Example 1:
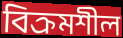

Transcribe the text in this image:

বিক্রমশীল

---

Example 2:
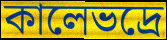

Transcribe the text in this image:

কালেভদ্রে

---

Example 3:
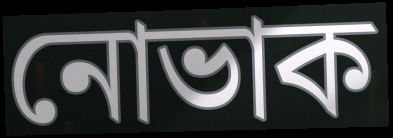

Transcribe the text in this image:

নোভাক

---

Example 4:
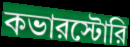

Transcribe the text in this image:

কভারস্টোরি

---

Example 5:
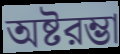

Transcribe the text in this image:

অষ্টরম্ভা